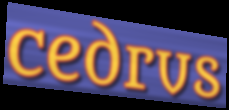
cedrus